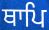
ਥਾਪਿ